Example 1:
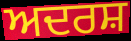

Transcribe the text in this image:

ਅਦਰਸ਼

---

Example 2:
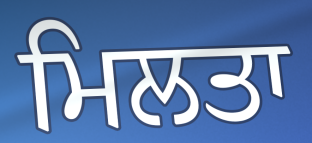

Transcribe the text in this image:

ਮਿਲਤਾ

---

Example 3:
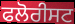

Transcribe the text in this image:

ਫਲੋਰੀਸਟ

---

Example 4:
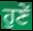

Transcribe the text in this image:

ਹੁਣੇਂ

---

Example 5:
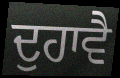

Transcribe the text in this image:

ਦੁਹਾਵੈ